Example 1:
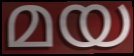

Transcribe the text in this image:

മയ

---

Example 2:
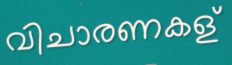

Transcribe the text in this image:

വിചാരണകള്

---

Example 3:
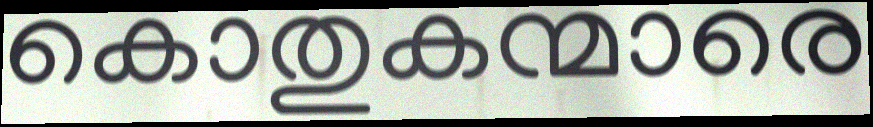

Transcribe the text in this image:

കൊതുകന്മാരെ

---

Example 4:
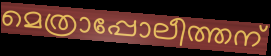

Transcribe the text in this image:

മെത്രാപ്പോലീത്തന്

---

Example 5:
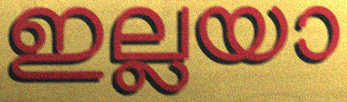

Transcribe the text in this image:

ഇല്ലയാ